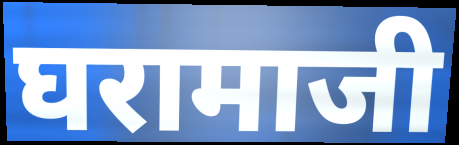
घरामाजी